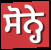
ਸੋਨ੍ਹੇ